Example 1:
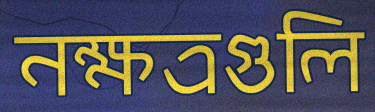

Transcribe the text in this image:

নক্ষত্রগুলি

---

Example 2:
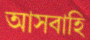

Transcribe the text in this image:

আসবাহি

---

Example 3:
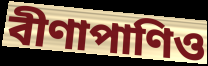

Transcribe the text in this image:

বীণাপাণিও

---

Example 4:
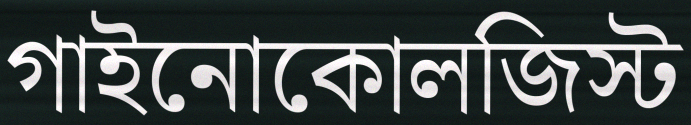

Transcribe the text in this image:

গাইনোকোলজিস্ট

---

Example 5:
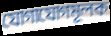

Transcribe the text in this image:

যোগাযোগমূলক